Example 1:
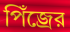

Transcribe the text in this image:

পিঁজ্রের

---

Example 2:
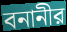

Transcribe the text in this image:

বনানীর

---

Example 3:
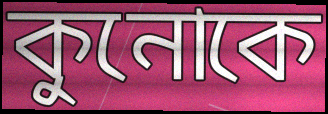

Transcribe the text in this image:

কুনোকে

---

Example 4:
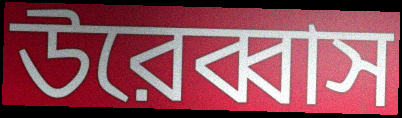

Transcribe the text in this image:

উরেব্বাস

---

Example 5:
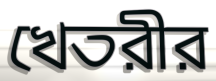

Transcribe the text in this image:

খেতরীর